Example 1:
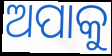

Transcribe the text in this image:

ଅପାକୁ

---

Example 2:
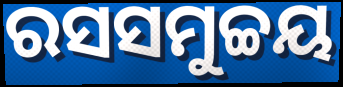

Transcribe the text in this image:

ରସସମୁଚ୍ଚୟ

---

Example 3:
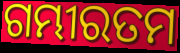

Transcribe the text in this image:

ଗମ୍ଭୀରତମ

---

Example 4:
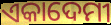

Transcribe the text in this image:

ଏକାଦେମୀ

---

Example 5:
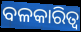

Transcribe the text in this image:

ବଳକାରିତ୍ୱ